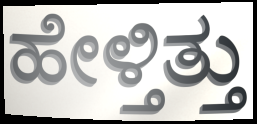
ಹೇಳ್ತಿತ್ತು